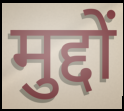
मुद्दों